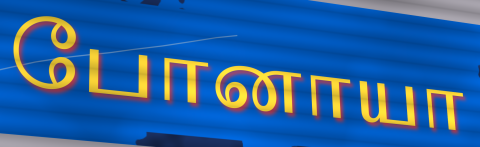
போனாயா